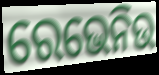
ରେଭେନିଉ